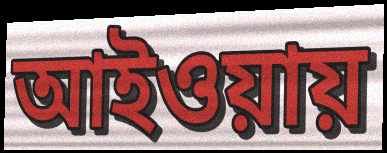
আইওয়ায়